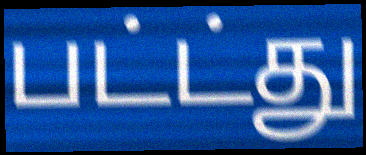
பட்ட்து